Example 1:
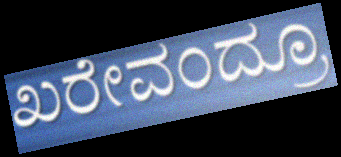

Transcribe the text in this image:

ಖರೇವಂದ್ರೂ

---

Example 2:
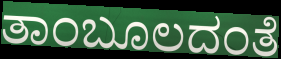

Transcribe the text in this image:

ತಾಂಬೂಲದಂತೆ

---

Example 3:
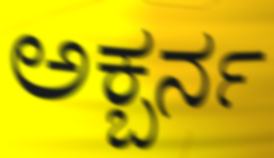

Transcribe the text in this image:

ಅಕ್ಬರ್ನ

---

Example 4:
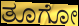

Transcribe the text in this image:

ತೂಗೋ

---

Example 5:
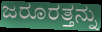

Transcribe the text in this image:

ಜರೂರತ್ತನ್ನು